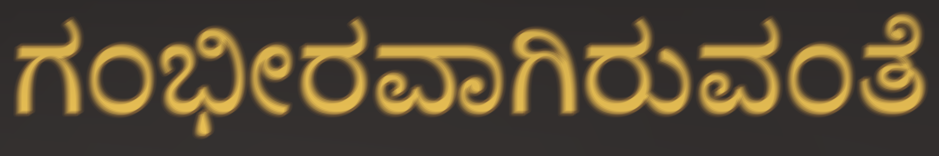
ಗಂಭೀರವಾಗಿರುವಂತೆ